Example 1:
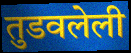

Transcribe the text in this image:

तुडवलेली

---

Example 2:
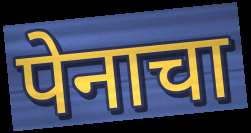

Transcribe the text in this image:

पेनाचा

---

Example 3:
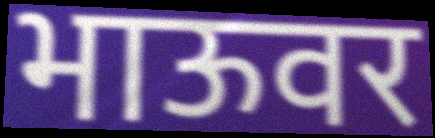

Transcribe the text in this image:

भाऊवर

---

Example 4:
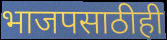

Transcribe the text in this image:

भाजपसाठीही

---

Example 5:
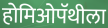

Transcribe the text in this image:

होमिओपॅथीला